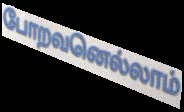
போறவனெல்லாம்